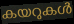
കയറുകൾ